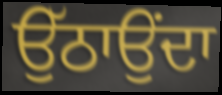
ਉੱਠਾਉਂਦਾ